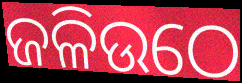
ଜଳିଉଠେ